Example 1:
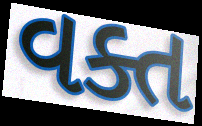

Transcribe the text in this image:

વક્ત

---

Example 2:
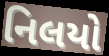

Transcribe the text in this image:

નિલયો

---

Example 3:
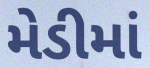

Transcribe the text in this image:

મેડીમાં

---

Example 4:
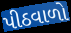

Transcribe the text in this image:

પીઠવાળો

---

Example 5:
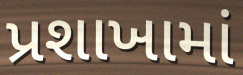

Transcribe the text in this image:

પ્રશાખામાં